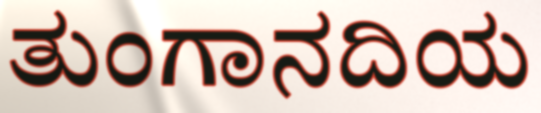
ತುಂಗಾನದಿಯ